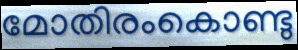
മോതിരംകൊണ്ടു